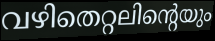
വഴിതെറ്റലിന്റെയും